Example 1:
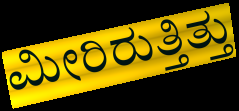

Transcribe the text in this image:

ಮೀರಿರುತ್ತಿತ್ತು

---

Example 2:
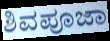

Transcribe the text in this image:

ಶಿವಪೂಜಾ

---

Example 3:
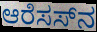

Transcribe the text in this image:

ಆರೆಸಸ್‌ನ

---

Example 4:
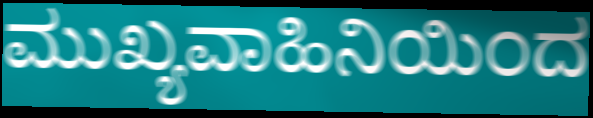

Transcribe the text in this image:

ಮುಖ್ಯವಾಹಿನಿಯಿಂದ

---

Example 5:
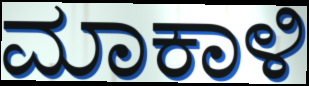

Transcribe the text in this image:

ಮಾಕಾಳಿ